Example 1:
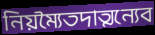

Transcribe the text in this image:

নিয়ম্যৈতদাত্মন্যেব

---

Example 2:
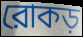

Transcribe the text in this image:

রোকড়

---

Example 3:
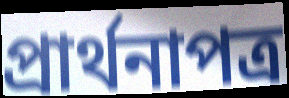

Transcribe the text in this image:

প্রার্থনাপত্র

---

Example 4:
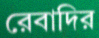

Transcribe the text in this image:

রেবাদির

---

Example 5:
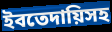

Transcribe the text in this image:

ইবতেদায়িসহ